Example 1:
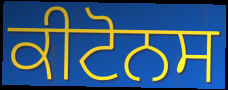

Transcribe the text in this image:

ਕੀਟੋਨਸ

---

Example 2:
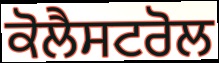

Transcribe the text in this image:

ਕੋਲੈਸਟਰੋਲ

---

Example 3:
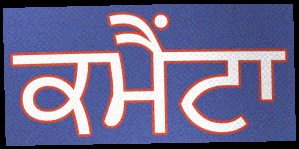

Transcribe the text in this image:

ਕਮੈਂਟਾ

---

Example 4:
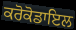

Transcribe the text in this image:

ਕਰੋਕੋਡਾਇਲ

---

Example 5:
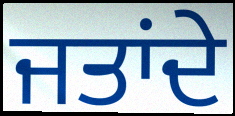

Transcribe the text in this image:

ਜਤਾਂਦੇ